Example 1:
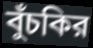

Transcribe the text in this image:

বুঁচকির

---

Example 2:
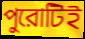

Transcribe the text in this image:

পুরোটিই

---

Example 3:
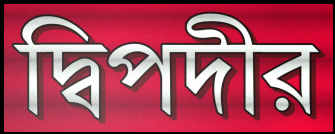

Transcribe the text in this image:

দ্বিপদীর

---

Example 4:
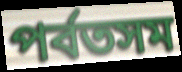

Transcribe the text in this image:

পর্বতসম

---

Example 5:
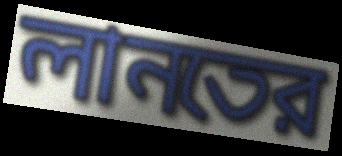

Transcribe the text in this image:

লানতের